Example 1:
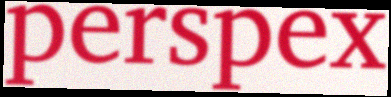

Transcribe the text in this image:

perspex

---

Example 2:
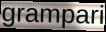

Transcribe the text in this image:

grampari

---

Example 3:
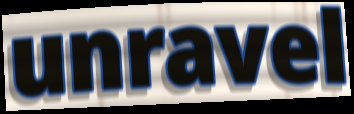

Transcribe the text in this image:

unravel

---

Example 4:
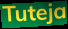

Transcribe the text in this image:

Tuteja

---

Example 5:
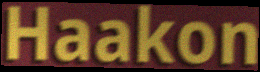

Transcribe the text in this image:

Haakon